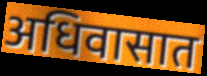
अधिवासात